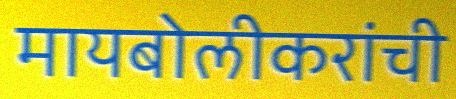
मायबोलीकरांची